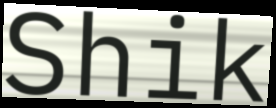
Shik